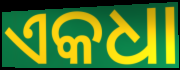
ଏକଧା